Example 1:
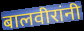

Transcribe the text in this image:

बालवीरांनी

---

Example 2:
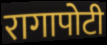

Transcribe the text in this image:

रागापोटी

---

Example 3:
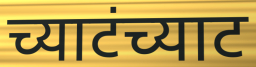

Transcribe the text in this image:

च्याटंच्याट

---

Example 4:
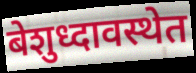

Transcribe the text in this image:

बेशुध्दावस्थेत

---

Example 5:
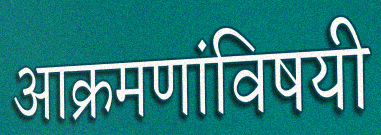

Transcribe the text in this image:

आक्रमणांविषयी